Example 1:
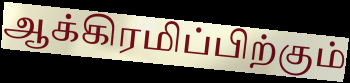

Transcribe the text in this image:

ஆக்கிரமிப்பிற்கும்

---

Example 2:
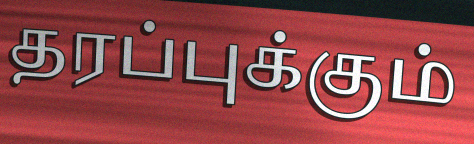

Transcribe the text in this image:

தரப்புக்கும்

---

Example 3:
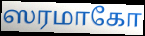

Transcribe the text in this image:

ஸரமாகோ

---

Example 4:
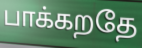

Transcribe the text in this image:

பாக்கறதே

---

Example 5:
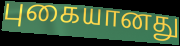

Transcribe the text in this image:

புகையானது